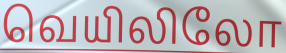
வெயிலிலோ